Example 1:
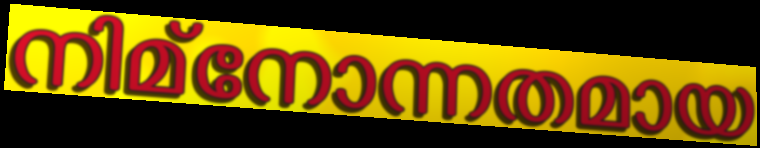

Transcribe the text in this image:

നിമ്നോന്നതമായ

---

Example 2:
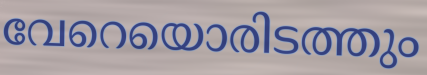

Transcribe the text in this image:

വേറെയൊരിടത്തും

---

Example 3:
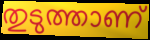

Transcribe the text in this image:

തുടുത്താണ്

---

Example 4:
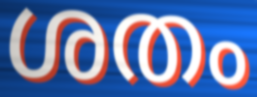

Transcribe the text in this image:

ശതം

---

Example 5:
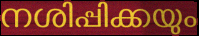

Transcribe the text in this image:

നശിപ്പിക്കയും